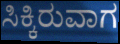
ಸಿಕ್ಕಿರುವಾಗ